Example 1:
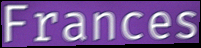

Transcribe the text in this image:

Frances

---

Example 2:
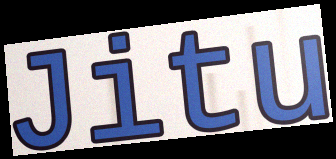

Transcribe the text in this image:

Jitu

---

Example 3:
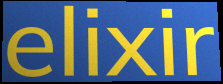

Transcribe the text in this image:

elixir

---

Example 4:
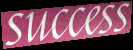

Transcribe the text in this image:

success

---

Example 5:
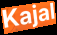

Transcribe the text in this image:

Kajal